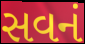
સવનં